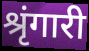
श्रृंगारी